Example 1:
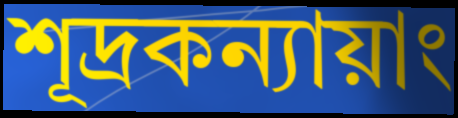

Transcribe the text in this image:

শূদ্রকন্যায়াং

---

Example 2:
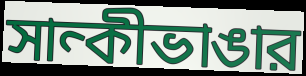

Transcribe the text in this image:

সান্কীভাঙার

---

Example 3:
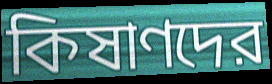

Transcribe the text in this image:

কিষাণদের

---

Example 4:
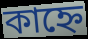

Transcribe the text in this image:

কাহ্নে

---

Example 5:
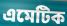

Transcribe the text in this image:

এমেটিক